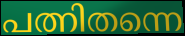
പത്നിതന്നെ